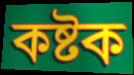
কষ্টক